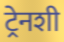
ट्रेनशी